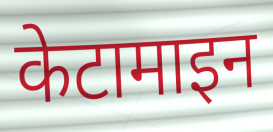
केटामाइन